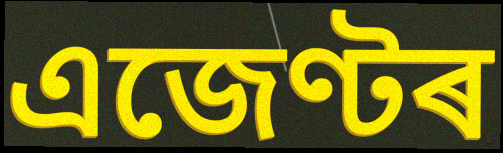
এজেণ্টৰ